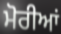
ਮੋਰੀਆਂ